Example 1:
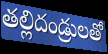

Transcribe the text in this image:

తల్లిదండ్రులతో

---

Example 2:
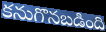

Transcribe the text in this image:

కనుగొనబడింది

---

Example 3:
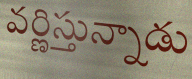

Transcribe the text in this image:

వర్ణిస్తున్నాడు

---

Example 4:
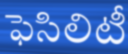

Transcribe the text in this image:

ఫెసిలిటీ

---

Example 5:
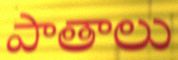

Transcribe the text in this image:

పాతాలు